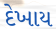
દેખાય